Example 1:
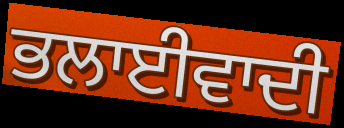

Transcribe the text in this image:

ਭਲਾਈਵਾਦੀ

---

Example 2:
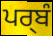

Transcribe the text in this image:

ਪਰ੍ਬੰ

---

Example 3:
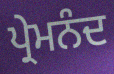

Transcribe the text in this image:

ਪ੍ਰੇਮਨੰਦ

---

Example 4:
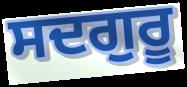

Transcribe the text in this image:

ਸਦਗੁਰੂ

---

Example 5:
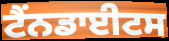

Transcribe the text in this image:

ਟੈਂਨਡਾਈਟਸ